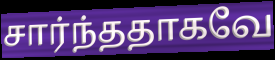
சார்ந்ததாகவே